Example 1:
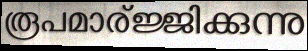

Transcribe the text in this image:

രൂപമാര്ജ്ജിക്കുന്നു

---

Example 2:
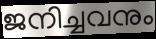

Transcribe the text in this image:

ജനിച്ചവനും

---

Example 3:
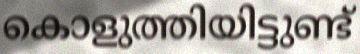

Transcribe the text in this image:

കൊളുത്തിയിട്ടുണ്ട്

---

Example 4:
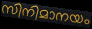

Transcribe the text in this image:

സിനിമാനയം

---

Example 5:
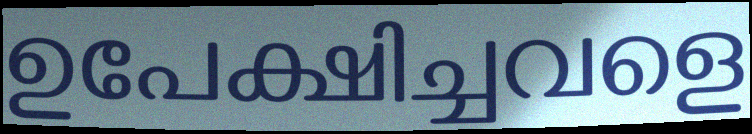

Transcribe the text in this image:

ഉപേക്ഷിച്ചവളെ